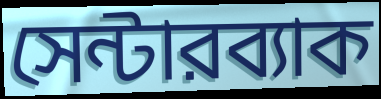
সেন্টারব্যাক